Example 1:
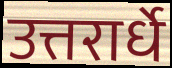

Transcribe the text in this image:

उत्तरार्धे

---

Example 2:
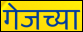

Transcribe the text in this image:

गेजच्या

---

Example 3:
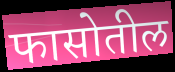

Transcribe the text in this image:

फासोतील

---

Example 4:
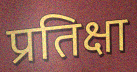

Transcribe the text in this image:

प्रतिक्षा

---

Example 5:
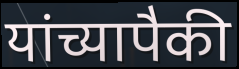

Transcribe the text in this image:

यांच्यापैकी